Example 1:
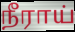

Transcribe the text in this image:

நீராய்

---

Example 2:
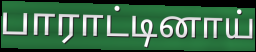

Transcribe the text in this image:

பாராட்டினாய்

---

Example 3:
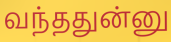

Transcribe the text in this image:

வந்ததுன்னு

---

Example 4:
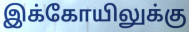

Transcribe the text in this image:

இக்கோயிலுக்கு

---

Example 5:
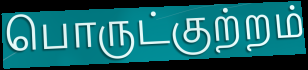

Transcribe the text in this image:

பொருட்குற்றம்